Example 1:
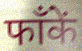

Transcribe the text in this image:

फाँकें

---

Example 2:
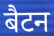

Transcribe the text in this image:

बैटन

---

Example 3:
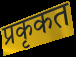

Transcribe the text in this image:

प्रकृकत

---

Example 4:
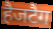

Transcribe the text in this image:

हैजटैग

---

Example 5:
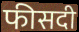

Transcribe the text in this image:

फीसदी